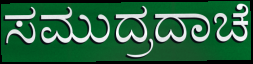
ಸಮುದ್ರದಾಚೆ